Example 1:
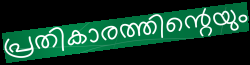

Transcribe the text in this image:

പ്രതികാരത്തിന്റെയും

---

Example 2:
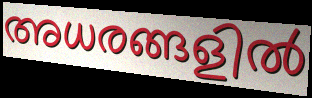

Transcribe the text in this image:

അധരങ്ങളിൽ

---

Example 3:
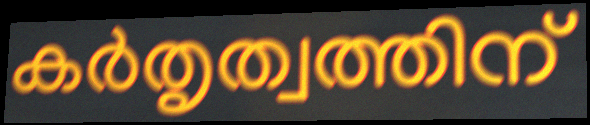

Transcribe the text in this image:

കർതൃത്വത്തിന്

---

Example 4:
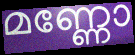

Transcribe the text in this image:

മണ്ണോ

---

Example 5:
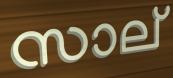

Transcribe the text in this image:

സാല്